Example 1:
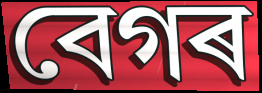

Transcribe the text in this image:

বেগৰ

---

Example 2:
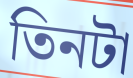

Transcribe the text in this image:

তিনটা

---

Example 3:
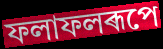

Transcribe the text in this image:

ফলাফলৰূপে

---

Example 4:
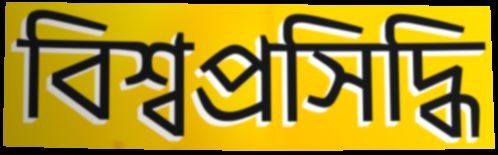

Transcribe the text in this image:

বিশ্বপ্ৰসিদ্ধি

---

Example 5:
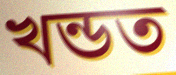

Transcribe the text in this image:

খন্ডত